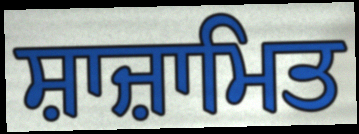
ਸ਼ਾਜ਼ਾਮਿਤ